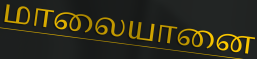
மாலையானை